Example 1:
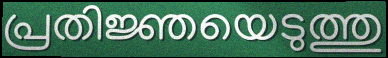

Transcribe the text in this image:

പ്രതിജ്ഞയെടുത്തു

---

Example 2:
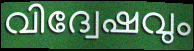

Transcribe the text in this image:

വിദ്വേഷവും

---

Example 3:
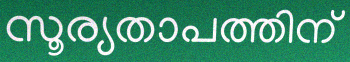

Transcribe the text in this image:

സൂര്യതാപത്തിന്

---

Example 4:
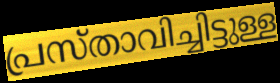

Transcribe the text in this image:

പ്രസ്താവിച്ചിട്ടുള്ള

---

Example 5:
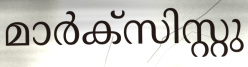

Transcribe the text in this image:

മാർക്സിസ്റ്റു